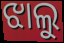
ଝାଲୁ